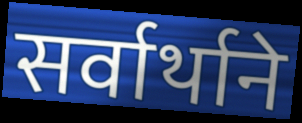
सर्वार्थाने